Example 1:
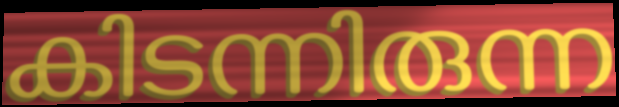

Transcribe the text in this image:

കിടന്നിരുന്ന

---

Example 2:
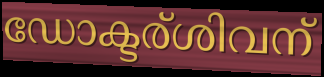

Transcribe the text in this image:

ഡോക്ടര്ശിവന്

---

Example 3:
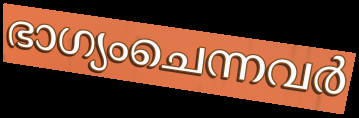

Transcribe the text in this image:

ഭാഗ്യംചെന്നവർ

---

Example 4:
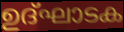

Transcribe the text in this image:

ഉദ്ഘാടക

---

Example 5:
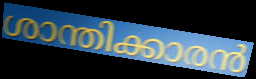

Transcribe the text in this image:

ശാന്തിക്കാരൻ